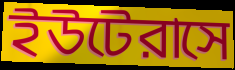
ইউটেরাসে